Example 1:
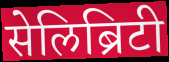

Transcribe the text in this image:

सेलिब्रिटी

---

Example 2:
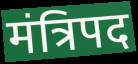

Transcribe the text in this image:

मंत्रिपद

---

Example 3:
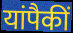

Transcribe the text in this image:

यांपैकीं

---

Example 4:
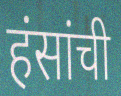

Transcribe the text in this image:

हंसांची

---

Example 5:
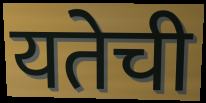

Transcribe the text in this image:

यतेची